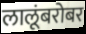
लालूंबरोबर